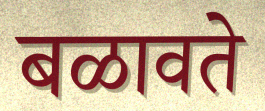
बळावते